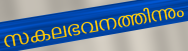
സകലഭവനത്തിന്നും